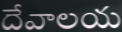
దేవాలయ